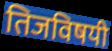
तिजविषयी